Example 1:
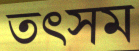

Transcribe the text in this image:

তৎসম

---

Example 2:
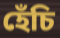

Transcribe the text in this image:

হেঁচি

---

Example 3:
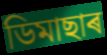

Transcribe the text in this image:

ডিমাছাৰ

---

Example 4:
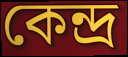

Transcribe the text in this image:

কেন্দ্ৰ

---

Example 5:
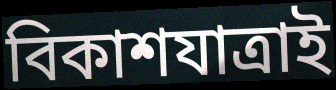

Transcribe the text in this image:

বিকাশযাত্ৰাই